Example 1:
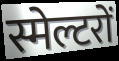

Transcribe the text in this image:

स्मेल्टरों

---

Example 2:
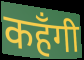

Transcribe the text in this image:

कहँगी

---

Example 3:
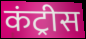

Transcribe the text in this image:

कंट्रीस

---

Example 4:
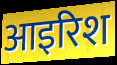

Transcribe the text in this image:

आइरिश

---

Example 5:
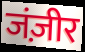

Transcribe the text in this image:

जंज़ीर